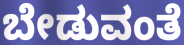
ಬೇಡುವಂತೆ